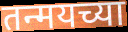
तन्मयच्या